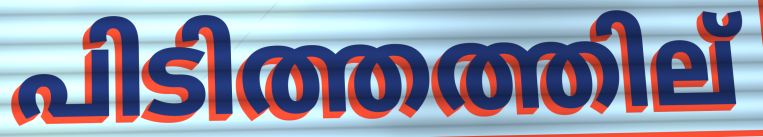
പിടിത്തത്തില്